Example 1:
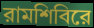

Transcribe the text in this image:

রামশিবিরে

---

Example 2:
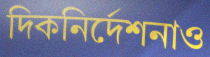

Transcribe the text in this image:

দিকনির্দেশনাও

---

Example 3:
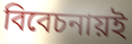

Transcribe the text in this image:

বিবেচনায়ই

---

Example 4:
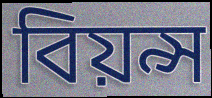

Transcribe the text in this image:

বিয়ন্স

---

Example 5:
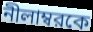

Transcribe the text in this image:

নীলাম্বরকে